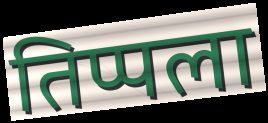
तिप्पला